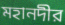
মহানদীর